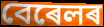
বেৰেলৰ